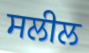
ਸਲੀਲ